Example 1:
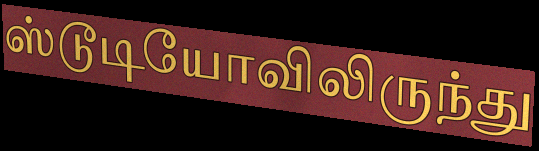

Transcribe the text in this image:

ஸ்டூடியோவிலிருந்து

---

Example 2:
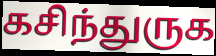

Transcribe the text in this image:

கசிந்துருக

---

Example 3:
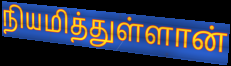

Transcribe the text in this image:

நியமித்துள்ளான்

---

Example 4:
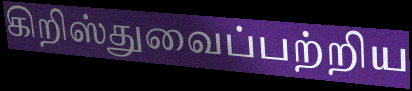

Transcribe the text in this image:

கிறிஸ்துவைப்பற்றிய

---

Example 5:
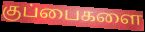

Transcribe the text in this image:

குப்பைகளை